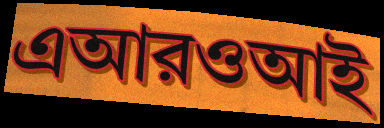
এআরওআই